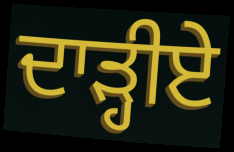
ਦਾੜ੍ਹੀਏ